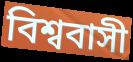
বিশ্ববাসী